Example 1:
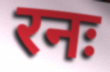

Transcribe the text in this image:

रनः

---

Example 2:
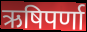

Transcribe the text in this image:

ऋषिपर्णा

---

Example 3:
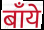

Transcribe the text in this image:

बाँये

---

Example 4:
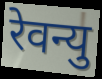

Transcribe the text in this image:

रेवन्यु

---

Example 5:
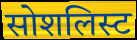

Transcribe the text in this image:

सोशलिस्‍ट